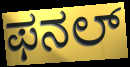
ಫನಲ್